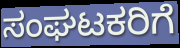
ಸಂಘಟಕರಿಗೆ